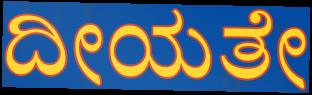
ದೀಯತೇ